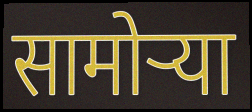
सामोऱ्या